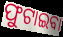
ଫୁଟାଇବା